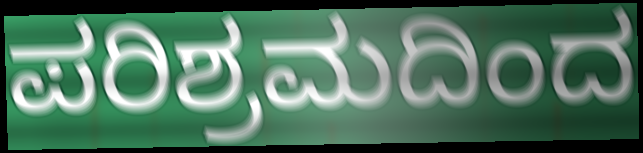
ಪರಿಶ್ರಮದಿಂದ